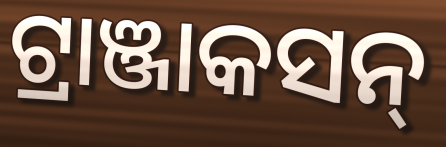
ଟ୍ରାଞ୍ଜାକସନ୍